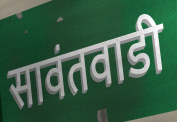
सावंतवाडी